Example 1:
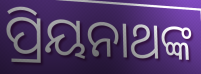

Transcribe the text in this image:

ପ୍ରିୟନାଥଙ୍କ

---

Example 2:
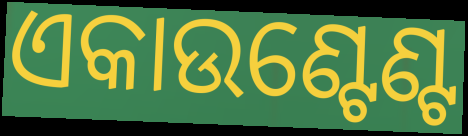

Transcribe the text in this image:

ଏକାଉଣ୍ଟେଣ୍ଟ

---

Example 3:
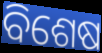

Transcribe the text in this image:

ବିଶେଷ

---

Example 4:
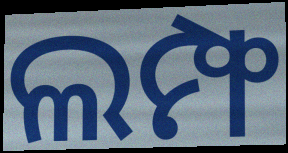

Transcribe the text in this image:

ଲମ୍ଫ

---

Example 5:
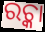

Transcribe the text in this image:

ରଚ୍କା